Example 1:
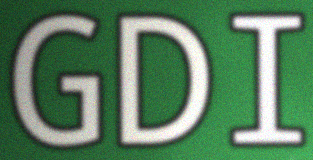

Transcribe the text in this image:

GDI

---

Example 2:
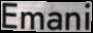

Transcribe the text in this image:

Emani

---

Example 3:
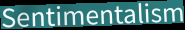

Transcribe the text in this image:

Sentimentalism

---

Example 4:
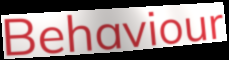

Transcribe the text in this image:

Behaviour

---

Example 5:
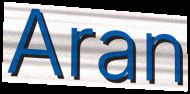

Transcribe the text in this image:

Aran